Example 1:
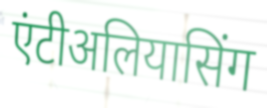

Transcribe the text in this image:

एंटीअलियासिंग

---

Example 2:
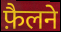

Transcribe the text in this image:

फ़ैलने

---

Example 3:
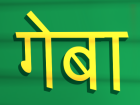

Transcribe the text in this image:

गेबा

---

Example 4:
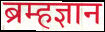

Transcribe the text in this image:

ब्रम्हज्ञान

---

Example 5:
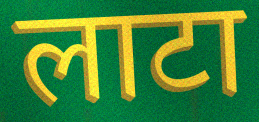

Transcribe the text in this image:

लाटा